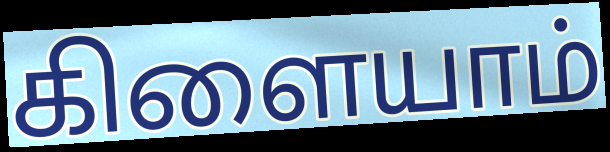
கிளையாம்